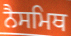
ਨੈਸਮਿਥ